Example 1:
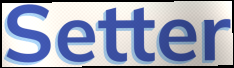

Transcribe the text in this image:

Setter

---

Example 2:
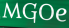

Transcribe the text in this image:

MGOe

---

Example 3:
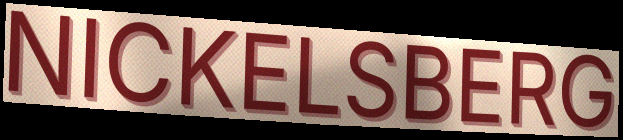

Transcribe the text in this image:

NICKELSBERG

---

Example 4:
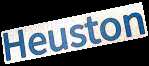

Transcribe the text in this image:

Heuston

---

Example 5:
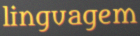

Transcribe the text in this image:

linguagem